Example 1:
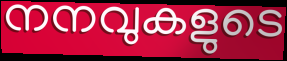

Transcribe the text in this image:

നനവുകളുടെ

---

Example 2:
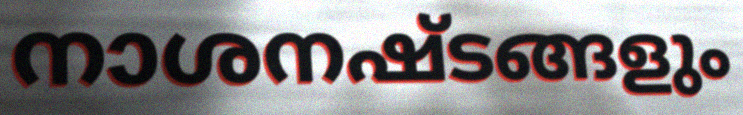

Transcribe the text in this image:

നാശനഷ്ടങ്ങളും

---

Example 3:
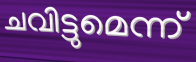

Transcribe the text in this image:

ചവിട്ടുമെന്ന്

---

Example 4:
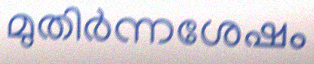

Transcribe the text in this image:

മുതിർന്നശേഷം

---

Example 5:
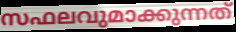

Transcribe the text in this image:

സഫലവുമാക്കുന്നത്